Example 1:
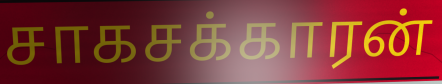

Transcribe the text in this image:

சாகசக்காரன்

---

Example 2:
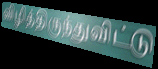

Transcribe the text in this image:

விழித்திருந்துவிட்டு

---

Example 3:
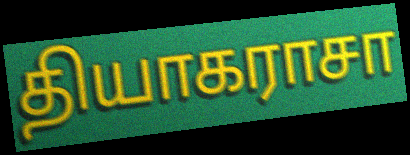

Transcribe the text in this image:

தியாகராசா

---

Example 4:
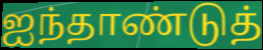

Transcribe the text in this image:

ஐந்தாண்டுத்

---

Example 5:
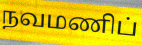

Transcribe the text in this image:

நவமணிப்